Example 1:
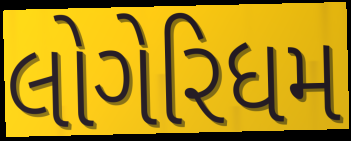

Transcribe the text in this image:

લોગેરિધમ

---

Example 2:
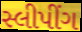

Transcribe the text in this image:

સ્લીપીંગ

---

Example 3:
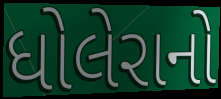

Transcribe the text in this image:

ધોલેરાનો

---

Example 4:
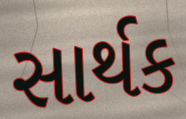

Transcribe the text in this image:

સાર્થક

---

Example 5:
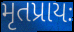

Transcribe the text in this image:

મૃતપ્રાયઃ